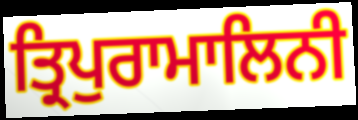
ਤ੍ਰਿਪੁਰਾਮਾਲਿਨੀ